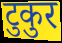
टुकुर